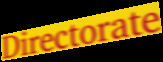
Directorate